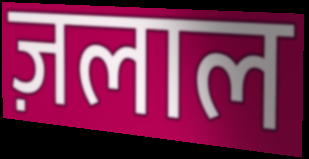
ज़लाल